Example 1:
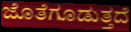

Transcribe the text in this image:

ಜೊತೆಗೂಡುತ್ತದೆ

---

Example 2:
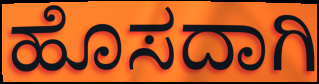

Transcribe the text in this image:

ಹೊಸದಾಗಿ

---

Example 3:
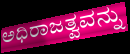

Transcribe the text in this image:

ಅಧಿರಾಜತ್ವವನ್ನು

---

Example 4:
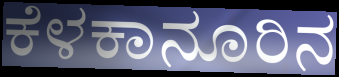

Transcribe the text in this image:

ಕೆಳಕಾನೂರಿನ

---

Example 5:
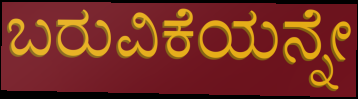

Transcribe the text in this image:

ಬರುವಿಕೆಯನ್ನೇ